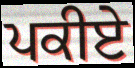
ਪਕੀਏ